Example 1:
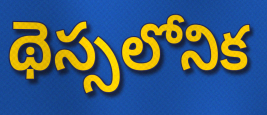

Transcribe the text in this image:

థెస్సలోనిక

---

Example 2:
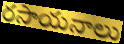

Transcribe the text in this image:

రసాయనాలు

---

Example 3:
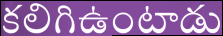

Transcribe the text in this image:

కలిగిఉంటాడు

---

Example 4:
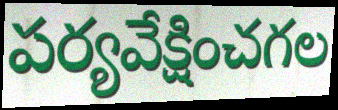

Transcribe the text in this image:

పర్యవేక్షించగల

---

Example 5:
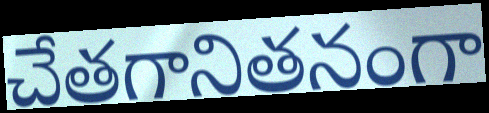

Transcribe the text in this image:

చేతగానితనంగా